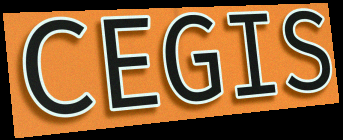
CEGIS